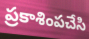
ప్రకాశింపచేసి